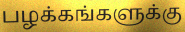
பழக்கங்களுக்கு